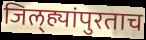
जिल्ह्यांपुरताच